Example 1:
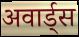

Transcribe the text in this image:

अवार्ड्स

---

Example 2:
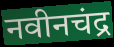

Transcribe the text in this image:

नवीनचंद्र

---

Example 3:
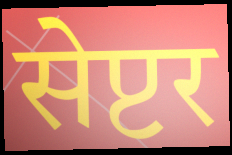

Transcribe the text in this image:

सेप्टर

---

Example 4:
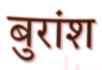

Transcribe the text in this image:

बुरांश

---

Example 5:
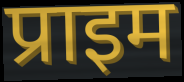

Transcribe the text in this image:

प्राइम